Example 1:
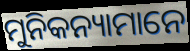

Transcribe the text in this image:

ମୁନିକନ୍ୟାମାନେ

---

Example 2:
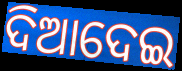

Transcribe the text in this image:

ଦିଆଦେଇ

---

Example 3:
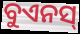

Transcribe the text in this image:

ବୁଏନସ୍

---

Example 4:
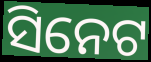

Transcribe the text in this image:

ସିନେଟ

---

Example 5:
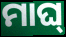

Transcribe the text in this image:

ମାଘ୍